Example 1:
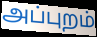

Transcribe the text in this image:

அப்புறம்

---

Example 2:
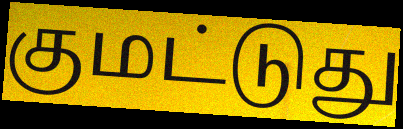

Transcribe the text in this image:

குமட்டுது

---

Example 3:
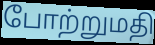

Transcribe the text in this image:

போற்றுமதி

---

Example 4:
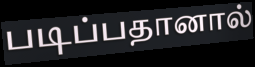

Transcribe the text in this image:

படிப்பதானால்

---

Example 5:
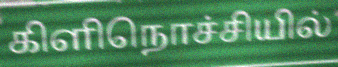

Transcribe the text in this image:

கிளிநொச்சியில்